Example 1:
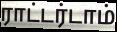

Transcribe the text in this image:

ராட்டர்டாம்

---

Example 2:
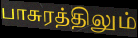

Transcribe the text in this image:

பாசுரத்திலும்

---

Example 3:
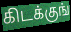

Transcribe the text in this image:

கிடக்குங்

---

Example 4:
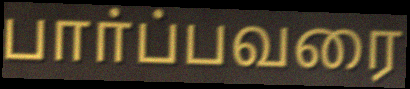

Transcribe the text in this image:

பார்ப்பவரை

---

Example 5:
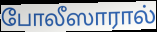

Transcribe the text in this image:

போலீஸாரால்